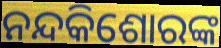
ନନ୍ଦକିଶୋରଙ୍କ